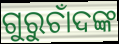
ଗୁରୁଚାଁଦଙ୍କ